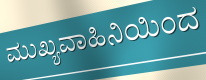
ಮುಖ್ಯವಾಹಿನಿಯಿಂದ